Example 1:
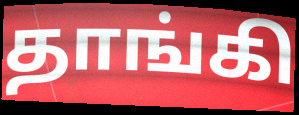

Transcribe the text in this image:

தாங்கி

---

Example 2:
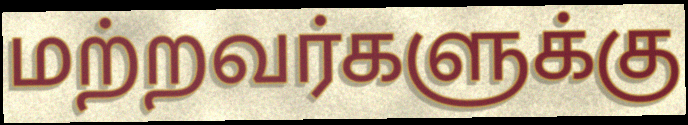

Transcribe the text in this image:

மற்றவர்களுக்கு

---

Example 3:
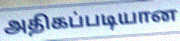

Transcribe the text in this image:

அதிகப்படியான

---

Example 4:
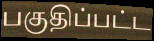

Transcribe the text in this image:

பகுதிப்பட்ட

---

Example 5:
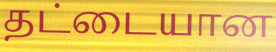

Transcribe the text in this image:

தட்டையான